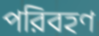
পরিবহণ